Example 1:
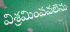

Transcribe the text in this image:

విశ్రమింపవలెను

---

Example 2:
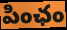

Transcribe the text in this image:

పింఛం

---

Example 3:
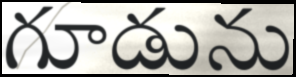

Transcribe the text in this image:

గూడును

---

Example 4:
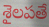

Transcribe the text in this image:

శైలపతే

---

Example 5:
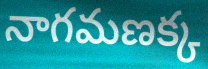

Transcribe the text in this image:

నాగమణక్క